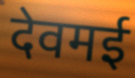
देवमई